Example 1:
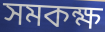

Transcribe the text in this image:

সমকক্ষ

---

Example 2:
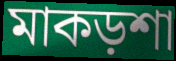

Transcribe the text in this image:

মাকড়শা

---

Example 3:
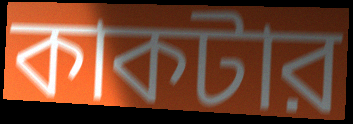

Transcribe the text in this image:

কাকটার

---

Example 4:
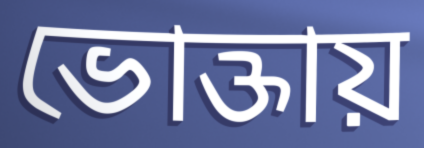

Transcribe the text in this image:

ভোক্তায়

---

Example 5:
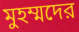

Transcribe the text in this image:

মুহম্মদের